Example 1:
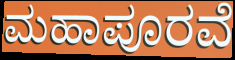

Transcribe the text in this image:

ಮಹಾಪೂರವೆ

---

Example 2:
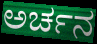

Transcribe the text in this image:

ಅರ್ಚನ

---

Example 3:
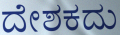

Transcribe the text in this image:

ದೇಶಕದು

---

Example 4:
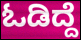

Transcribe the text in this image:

ಓಡಿದ್ದೆ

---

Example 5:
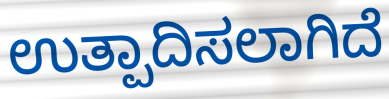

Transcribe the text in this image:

ಉತ್ಪಾದಿಸಲಾಗಿದೆ